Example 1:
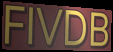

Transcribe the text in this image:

FIVDB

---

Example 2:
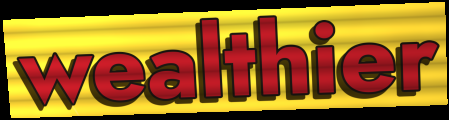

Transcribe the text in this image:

wealthier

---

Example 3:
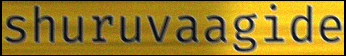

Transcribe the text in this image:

shuruvaagide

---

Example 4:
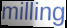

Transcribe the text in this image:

milling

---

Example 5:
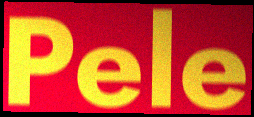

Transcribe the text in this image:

Pele